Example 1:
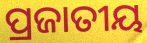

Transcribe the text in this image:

ପ୍ରଜାତୀୟ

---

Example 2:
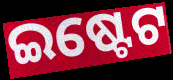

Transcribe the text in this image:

ଇଷ୍ଟେଟ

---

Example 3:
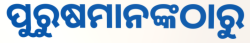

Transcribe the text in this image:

ପୁରୁଷମାନଙ୍କଠାରୁ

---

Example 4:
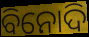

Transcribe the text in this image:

ବିନୋଦି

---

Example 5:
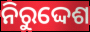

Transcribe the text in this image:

ନିରୁଦ୍ଦେଶ